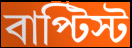
বাপ্টিস্ট